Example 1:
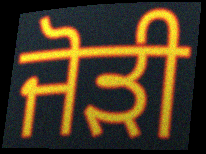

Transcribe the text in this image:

ਜੋੜੀ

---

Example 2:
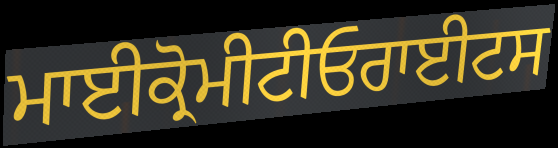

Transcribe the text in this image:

ਮਾਈਕ੍ਰੋਮੀਟੀਓਰਾਈਟਸ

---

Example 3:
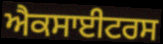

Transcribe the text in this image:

ਐਕਸਾਈਟਰਸ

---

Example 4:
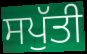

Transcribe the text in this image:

ਸਪੁੱਤੀ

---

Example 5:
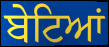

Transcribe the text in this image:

ਬੇਟਿਆਂ